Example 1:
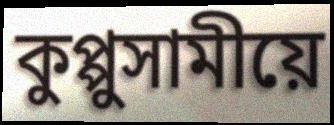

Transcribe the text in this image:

কুপ্পুসামীয়ে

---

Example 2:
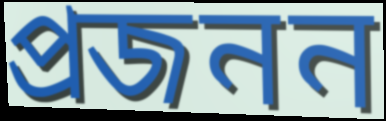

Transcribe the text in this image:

প্ৰজনন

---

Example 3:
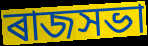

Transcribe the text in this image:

ৰাজসভা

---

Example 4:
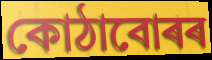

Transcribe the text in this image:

কোঠাবোৰৰ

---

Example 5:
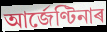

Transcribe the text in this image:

আৰ্জেণ্টিনাৰ